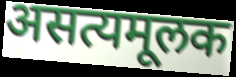
असत्यमूलक